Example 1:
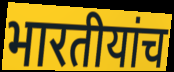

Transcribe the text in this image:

भारतीयांच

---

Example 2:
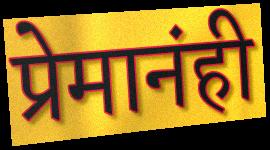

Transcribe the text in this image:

प्रेमानंही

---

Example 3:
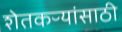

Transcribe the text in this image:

शेतकऱ्यांसाठी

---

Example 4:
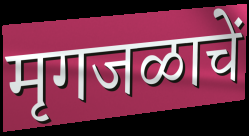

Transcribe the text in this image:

मृगजळाचें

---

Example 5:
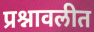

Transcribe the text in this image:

प्रश्नावलीत